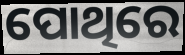
ପୋଥିରେ